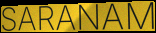
SARANAM